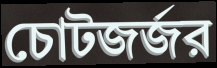
চোটজর্জর